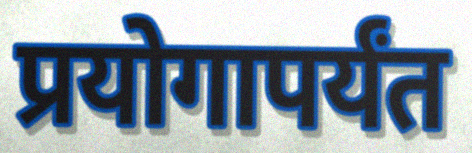
प्रयोगापर्यंत